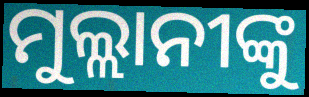
ମୁଲ୍ଲାନୀଙ୍କୁ